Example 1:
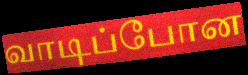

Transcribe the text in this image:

வாடிப்போன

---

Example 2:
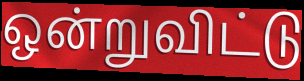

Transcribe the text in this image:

ஒன்றுவிட்டு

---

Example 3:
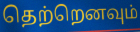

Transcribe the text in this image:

தெற்றெனவும்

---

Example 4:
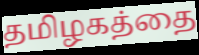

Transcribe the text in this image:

தமிழகத்தை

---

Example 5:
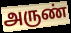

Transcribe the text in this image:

அருண்